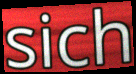
sich